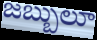
జబ్బులూ